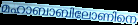
മഹാബാബിലോണിനെ